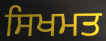
ਸਿਖਮਤ